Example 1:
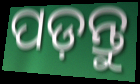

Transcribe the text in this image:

ପଡ଼ନ୍ତୁ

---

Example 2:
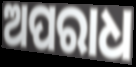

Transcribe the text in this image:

ଅପରାଧ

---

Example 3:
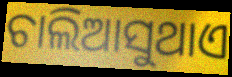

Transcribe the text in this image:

ଚାଲିଆସୁଥାଏ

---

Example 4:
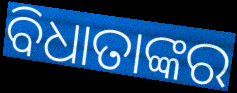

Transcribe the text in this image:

ବିଧାତାଙ୍କର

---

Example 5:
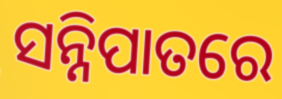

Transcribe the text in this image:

ସନ୍ନିପାତରେ